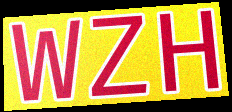
WZH